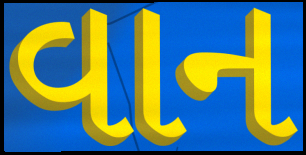
વાન